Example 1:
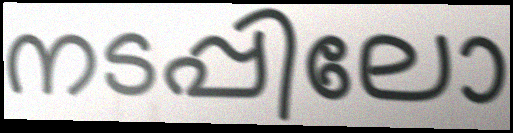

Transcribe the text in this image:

നടപ്പിലോ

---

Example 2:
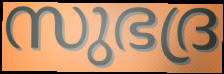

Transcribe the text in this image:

സുഭദ്ര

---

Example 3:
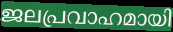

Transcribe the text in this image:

ജലപ്രവാഹമായി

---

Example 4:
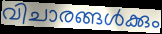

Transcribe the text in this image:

വിചാരങ്ങൾക്കും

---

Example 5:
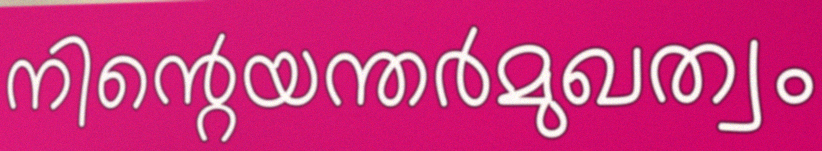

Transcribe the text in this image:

നിന്റെയന്തർമുഖത്വം